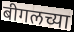
बीगलच्या